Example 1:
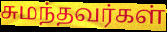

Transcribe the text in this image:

சுமந்தவர்கள்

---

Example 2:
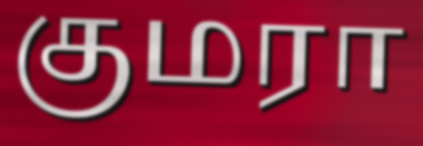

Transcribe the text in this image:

குமரா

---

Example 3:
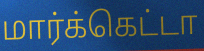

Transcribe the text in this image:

மார்க்கெட்டா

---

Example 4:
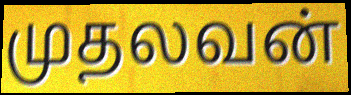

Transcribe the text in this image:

முதலவன்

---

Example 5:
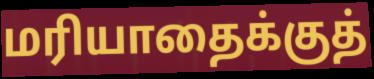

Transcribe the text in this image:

மரியாதைக்குத்